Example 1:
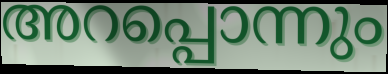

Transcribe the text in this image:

അറപ്പൊന്നും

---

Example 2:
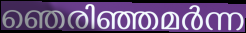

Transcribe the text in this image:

ഞെരിഞ്ഞമർന്ന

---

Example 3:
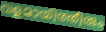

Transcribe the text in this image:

വളമായിത്തീരും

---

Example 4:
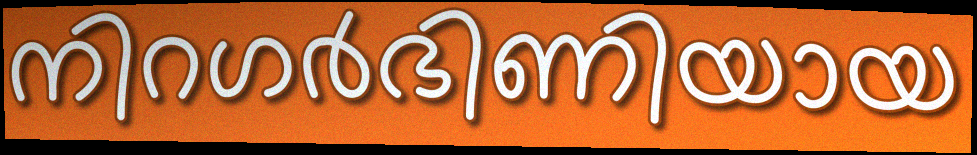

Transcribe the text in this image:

നിറഗർഭിണിയായ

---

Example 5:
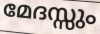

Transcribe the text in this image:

മേദസ്സും